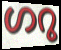
ഗറു